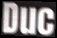
Duc